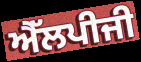
ਐੱਲਪੀਜੀ